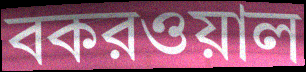
বকরওয়াল